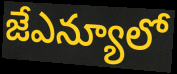
జేఎన్యూలో